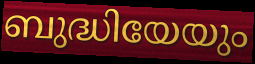
ബുദ്ധിയേയും